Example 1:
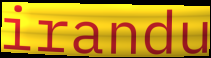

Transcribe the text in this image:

irandu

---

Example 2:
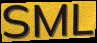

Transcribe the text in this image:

SML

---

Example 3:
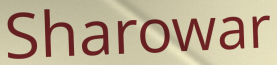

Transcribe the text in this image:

Sharowar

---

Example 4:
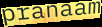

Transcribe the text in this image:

pranaam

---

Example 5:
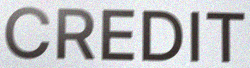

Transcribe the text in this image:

CREDIT